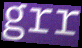
grr